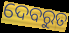
ଦେବରୁତ